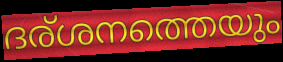
ദര്ശനത്തെയും